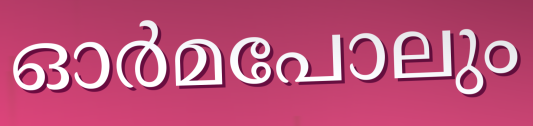
ഓർമപോലും